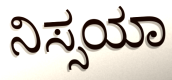
ನಿಸ್ಸಯಾ